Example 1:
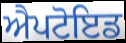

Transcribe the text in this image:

ਐਪਟੋਇਡ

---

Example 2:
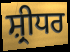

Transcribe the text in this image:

ਸ਼੍ਰੀਧਰ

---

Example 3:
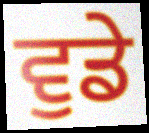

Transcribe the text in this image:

ਵੁਡੇ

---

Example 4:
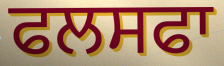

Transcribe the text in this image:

ਫਲਸਫਾ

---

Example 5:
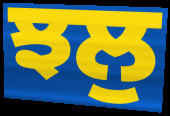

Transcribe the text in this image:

ਝਲੁ